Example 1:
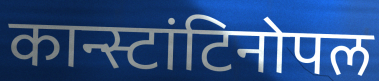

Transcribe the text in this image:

कान्स्टांटिनोपल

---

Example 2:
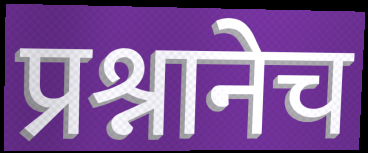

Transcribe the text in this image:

प्रश्नानेच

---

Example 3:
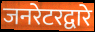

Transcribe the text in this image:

जनरेटरद्वारे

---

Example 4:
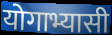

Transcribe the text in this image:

योगाभ्यासी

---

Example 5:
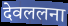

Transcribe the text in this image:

देवललना